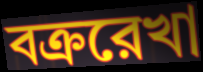
বক্ররেখা